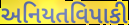
અનિયતવિપાકી